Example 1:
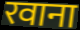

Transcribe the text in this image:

रवाना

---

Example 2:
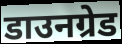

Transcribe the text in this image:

डाउनग्रेड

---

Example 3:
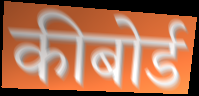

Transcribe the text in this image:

कीबोर्ड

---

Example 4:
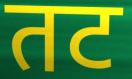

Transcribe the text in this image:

तट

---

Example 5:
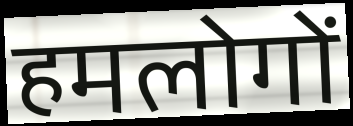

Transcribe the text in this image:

हमलोगों